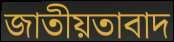
জাতীয়তাবাদ